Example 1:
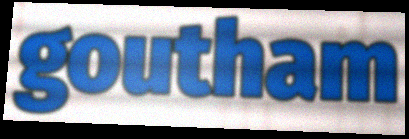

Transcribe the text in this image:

goutham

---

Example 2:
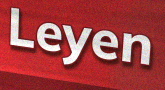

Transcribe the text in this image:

Leyen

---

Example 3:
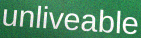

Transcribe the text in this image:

unliveable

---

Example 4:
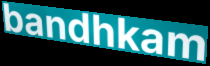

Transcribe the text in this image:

bandhkam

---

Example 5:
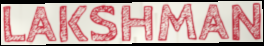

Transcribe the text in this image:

LAKSHMAN